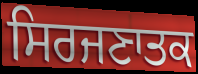
ਸਿਰਜਣਾਤਕ